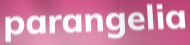
parangelia